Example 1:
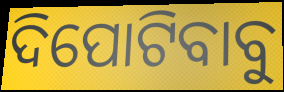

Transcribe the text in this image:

ଦିପୋଟିବାବୁ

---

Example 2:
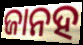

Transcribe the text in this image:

ଜାନହ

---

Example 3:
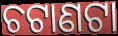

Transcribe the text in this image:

ଚଟାଣଟା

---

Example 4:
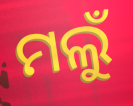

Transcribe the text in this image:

ମଲୁଁ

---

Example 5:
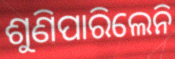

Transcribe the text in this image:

ଶୁଣିପାରିଲେନି